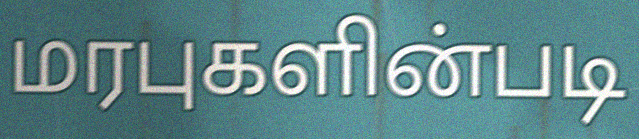
மரபுகளின்படி